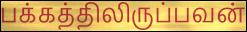
பக்கத்திலிருப்பவன்